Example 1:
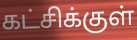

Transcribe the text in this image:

கட்சிக்குள்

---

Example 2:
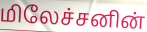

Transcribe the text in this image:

மிலேச்சனின்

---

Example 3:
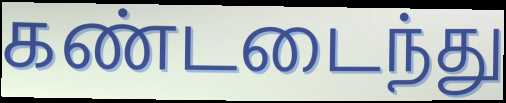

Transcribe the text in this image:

கண்டடைந்து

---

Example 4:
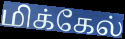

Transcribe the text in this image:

மிக்கேல்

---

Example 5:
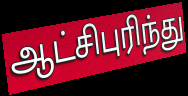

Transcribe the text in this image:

ஆட்சிபுரிந்து